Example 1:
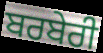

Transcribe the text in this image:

ਬਰਬੇਰੀ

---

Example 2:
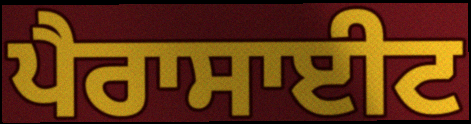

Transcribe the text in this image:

ਪੈਰਾਸਾਈਟ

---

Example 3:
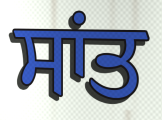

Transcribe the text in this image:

ਸਾਂਤ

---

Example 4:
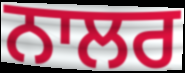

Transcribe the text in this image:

ਨਾਲਰ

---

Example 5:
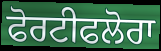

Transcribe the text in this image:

ਫੋਰਟੀਫਲੋਰਾ